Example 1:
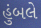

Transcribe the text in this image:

હુંબલે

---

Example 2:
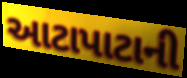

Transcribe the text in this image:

આટાપાટાની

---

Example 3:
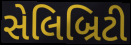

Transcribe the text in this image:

સેલિબ્રિટી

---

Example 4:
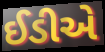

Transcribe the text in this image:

ઈડીએ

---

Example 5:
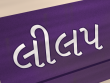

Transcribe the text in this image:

લીલપ